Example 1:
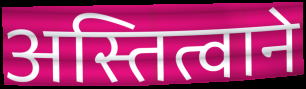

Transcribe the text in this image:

अस्तित्वाने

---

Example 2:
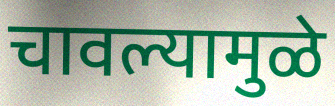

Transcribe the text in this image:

चावल्यामुळे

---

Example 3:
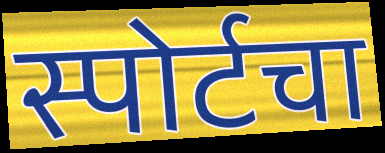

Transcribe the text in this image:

स्पोर्टचा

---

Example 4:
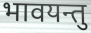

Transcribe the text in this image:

भावयन्तु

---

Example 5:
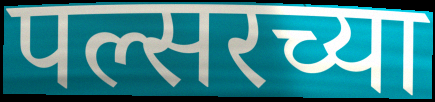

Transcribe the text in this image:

पल्सरच्या